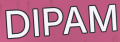
DIPAM